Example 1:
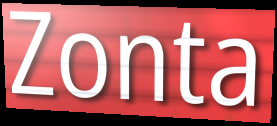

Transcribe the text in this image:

Zonta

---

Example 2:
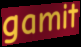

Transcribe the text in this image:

gamit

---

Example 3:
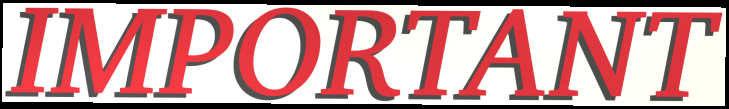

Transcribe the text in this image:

IMPORTANT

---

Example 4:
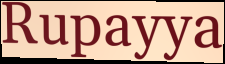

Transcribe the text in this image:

Rupayya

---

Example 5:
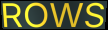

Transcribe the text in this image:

ROWS